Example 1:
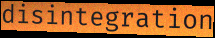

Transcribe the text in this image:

disintegration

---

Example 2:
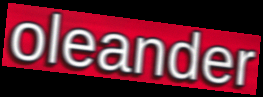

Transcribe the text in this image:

oleander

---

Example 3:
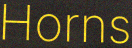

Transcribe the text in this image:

Horns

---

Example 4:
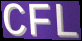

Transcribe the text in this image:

CFL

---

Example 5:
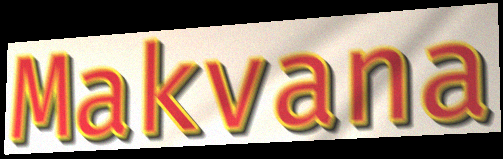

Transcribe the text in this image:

Makvana